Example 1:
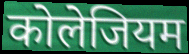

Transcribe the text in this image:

कोलेजियम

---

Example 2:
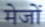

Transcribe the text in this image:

मेजों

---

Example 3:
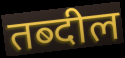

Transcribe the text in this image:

तब्‍दील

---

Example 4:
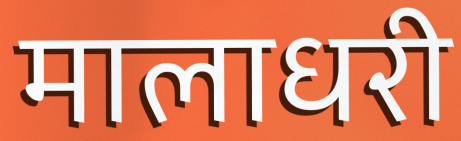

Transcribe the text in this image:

मालाधरी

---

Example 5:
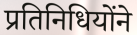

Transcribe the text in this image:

प्रतिनिधियोंने